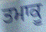
ਤਮਾਕੂ